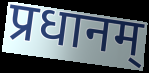
प्रधानम्